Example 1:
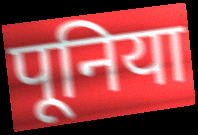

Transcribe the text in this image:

पूनिया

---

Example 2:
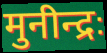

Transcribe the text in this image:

मुनीन्द्रः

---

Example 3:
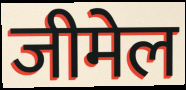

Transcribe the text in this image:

जीमेल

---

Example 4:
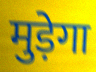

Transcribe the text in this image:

मुड़ेगा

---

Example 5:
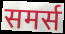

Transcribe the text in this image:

समर्स